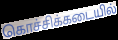
கொச்சிக்கடையில்